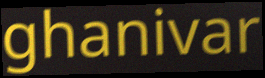
ghanivar